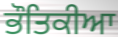
ਭੌਤਿਕੀਆ